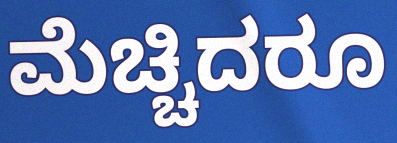
ಮೆಚ್ಚಿದರೂ